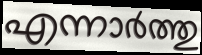
എന്നാർത്തു